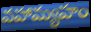
వహామ్యహం